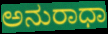
ಅನುರಾಧಾ